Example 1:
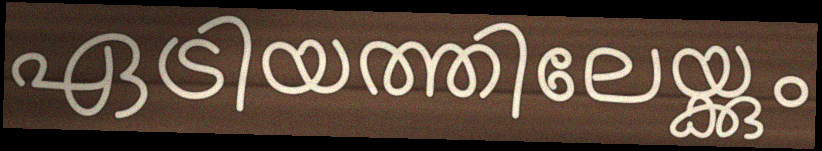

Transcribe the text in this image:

ഏട്രിയത്തിലേയ്ക്കും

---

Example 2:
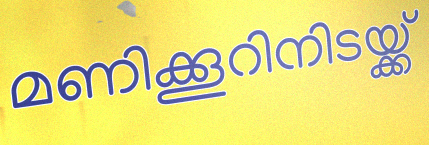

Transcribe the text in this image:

മണിക്കൂറിനിടയ്ക്ക്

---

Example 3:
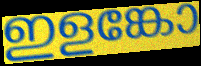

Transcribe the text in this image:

ഇളങ്കോ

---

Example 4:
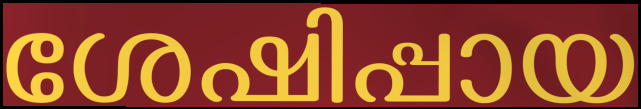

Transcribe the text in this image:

ശേഷിപ്പായ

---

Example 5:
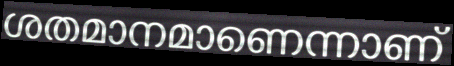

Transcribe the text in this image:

ശതമാനമാണെന്നാണ്